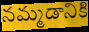
నమ్మడానికి